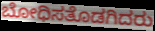
ಬೋಧಿಸತೊಡಗಿದರು